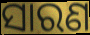
ସାରଣ